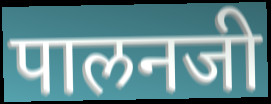
पालनजी